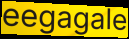
eegagale